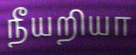
நீயறியா